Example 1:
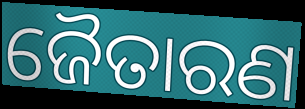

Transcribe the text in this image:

ଜୈତାରଣ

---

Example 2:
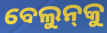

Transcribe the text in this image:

ବେଲୁନ୍‌କୁ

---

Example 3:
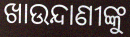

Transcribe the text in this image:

ଖାଉନ୍ଦାଣୀଙ୍କୁ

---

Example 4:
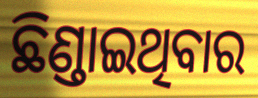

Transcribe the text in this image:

ଛିଣ୍ଡାଇଥିବାର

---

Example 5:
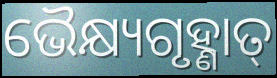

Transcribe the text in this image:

ଭୈକ୍ଷ୍ୟଗୃହ୍ଣାତ୍